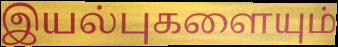
இயல்புகளையும்